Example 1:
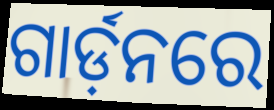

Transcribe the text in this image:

ଗାର୍ଡ଼ନରେ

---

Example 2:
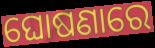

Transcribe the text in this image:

ଘୋଷଣାରେ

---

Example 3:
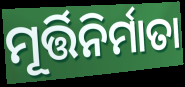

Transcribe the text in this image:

ମୂର୍ତ୍ତିନିର୍ମାତା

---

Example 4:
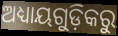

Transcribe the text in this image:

ଅଧ୍ୟାୟଗୁଡ଼ିକରୁ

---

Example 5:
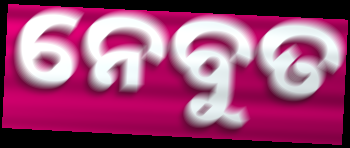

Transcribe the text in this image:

ନେବୁତ